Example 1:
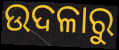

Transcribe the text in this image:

ଉଦଳାରୁ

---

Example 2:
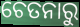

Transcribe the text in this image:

ଚେତନାରୁ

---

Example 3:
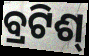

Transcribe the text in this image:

ବ୍ରଟିଶ୍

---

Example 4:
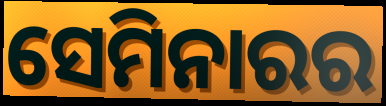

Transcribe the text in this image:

ସେମିନାରର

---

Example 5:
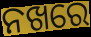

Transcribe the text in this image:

ନଖରେ